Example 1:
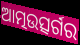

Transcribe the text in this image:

ଆତ୍ମଉତ୍ସର୍ଗର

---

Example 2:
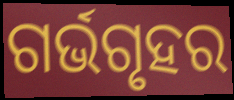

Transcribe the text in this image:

ଗର୍ଭଗୃହର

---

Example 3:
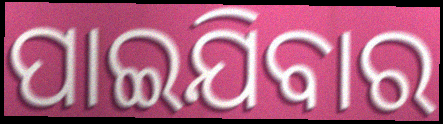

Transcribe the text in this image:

ପାଇଯିବାର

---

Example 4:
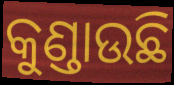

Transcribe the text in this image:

କୁଣ୍ଡାଉଛି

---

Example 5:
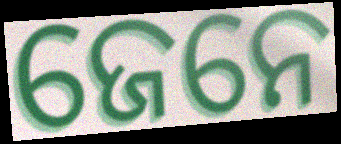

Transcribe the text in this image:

ଜେନେ